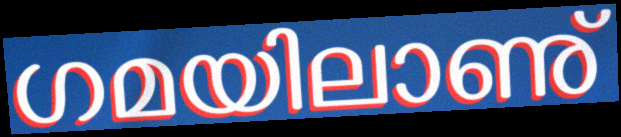
ഗമയിലാണു്